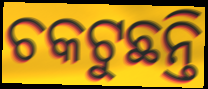
ଚକଟୁଛନ୍ତି